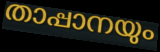
താപ്പാനയും